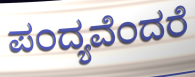
ಪಂದ್ಯವೆಂದರೆ